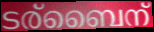
ടര്ബൈന്